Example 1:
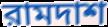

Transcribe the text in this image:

রামদাশ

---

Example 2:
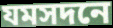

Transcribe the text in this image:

যমসদনে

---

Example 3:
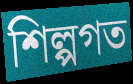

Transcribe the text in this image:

শিল্পগত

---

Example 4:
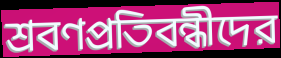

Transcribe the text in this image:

শ্রবণপ্রতিবন্ধীদের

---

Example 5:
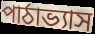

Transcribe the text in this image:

পাঠাভ্যাস